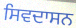
ਸਿਵਦਾਸਨ